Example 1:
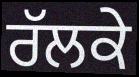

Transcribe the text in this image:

ਰੱਲਕੇ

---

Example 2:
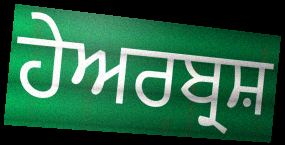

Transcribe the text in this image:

ਹੇਅਰਬ੍ਰਸ਼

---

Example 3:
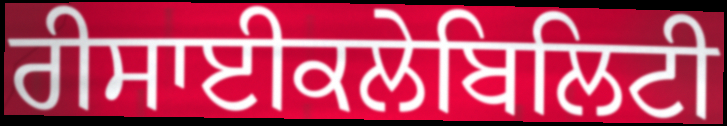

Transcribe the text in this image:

ਰੀਸਾਈਕਲੇਬਿਲਿਟੀ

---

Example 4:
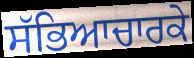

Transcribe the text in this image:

ਸੱਭਿਆਚਾਰਕੇ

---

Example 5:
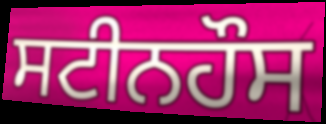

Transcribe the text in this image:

ਸਟੀਨਹੌਸ